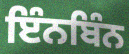
ਇੰਨਬਿੰਨ